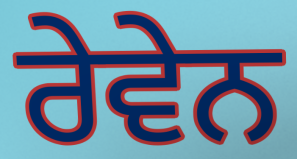
ਰੇਵੇਨ